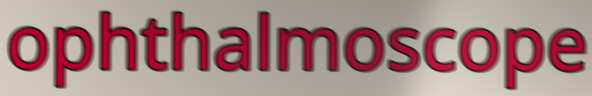
ophthalmoscope